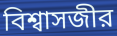
বিশ্বাসজীর